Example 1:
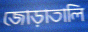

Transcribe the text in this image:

জোড়াতালি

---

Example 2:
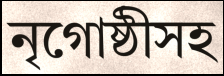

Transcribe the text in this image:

নৃগোষ্ঠীসহ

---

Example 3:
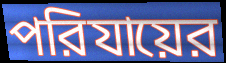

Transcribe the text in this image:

পরিযায়ের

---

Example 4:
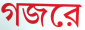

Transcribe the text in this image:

গজরে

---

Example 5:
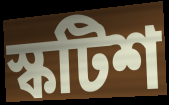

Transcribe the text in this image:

স্কটিশ